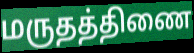
மருதத்திணை